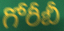
గోరీబీ